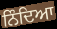
ਨਿੰਦਿਆ